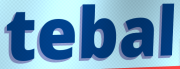
tebal